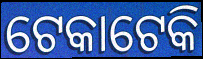
ଟେକାଟେକି